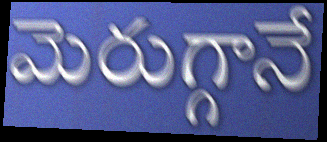
మెరుగ్గానే